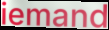
iemand